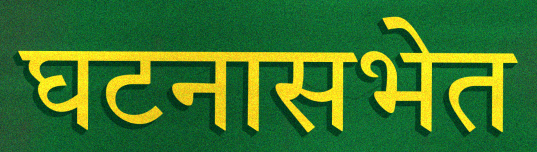
घटनासभेत